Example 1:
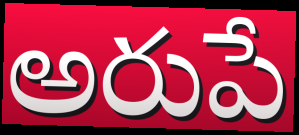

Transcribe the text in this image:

అరుపే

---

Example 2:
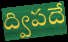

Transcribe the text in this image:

ద్విపదే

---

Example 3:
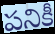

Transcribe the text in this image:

పనికీ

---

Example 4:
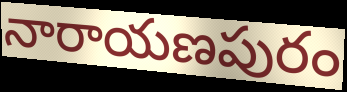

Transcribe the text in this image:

నారాయణపురం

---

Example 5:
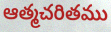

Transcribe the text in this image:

ఆత్మచరితము